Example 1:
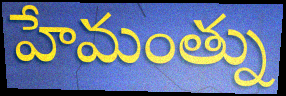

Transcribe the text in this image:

హేమంత్ను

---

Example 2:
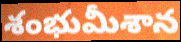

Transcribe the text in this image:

శంభుమీశాన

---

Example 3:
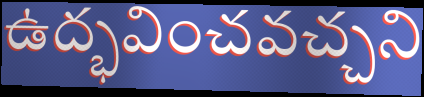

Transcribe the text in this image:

ఉద్భవించవచ్చని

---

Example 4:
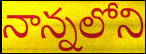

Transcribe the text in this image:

నాన్నలోని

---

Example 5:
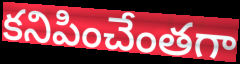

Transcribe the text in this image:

కనిపించేంతగా